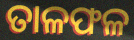
ତାଳଫଳ